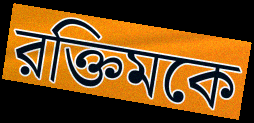
রক্তিমকে